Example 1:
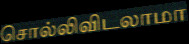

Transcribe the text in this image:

சொல்லிவிடலாமா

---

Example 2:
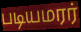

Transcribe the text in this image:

படியமரர்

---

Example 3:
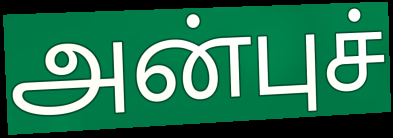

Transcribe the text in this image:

அன்புச்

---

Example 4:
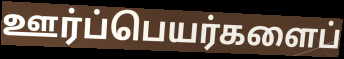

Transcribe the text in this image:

ஊர்ப்பெயர்களைப்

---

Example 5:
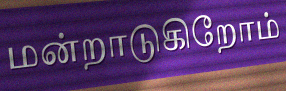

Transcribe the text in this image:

மன்றாடுகிறோம்